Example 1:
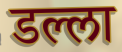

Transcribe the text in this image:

डल्ला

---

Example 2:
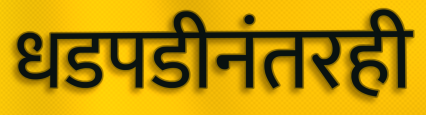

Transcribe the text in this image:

धडपडीनंतरही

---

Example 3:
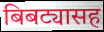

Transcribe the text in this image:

बिबट्यासह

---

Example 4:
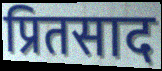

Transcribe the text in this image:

प्रितसाद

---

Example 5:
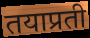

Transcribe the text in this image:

तयाप्रती